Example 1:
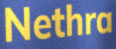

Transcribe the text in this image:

Nethra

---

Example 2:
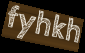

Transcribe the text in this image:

fyhkh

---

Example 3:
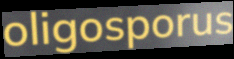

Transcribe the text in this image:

oligosporus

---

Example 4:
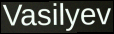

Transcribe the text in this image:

Vasilyev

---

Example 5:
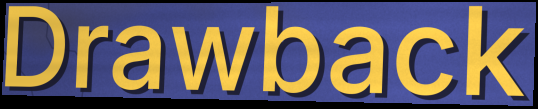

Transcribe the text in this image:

Drawback